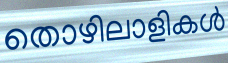
തൊഴിലാളികൾ